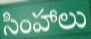
సింహాలు